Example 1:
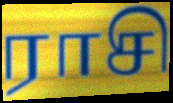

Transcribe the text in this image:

ராசி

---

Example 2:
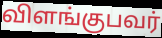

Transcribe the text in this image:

விளங்குபவர்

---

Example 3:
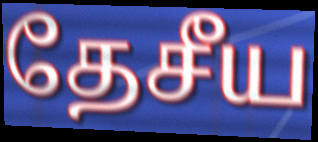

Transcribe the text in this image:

தேசீய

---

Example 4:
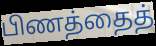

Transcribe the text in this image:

பிணத்தைத்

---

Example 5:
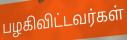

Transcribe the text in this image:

பழகிவிட்டவர்கள்